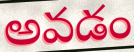
అవడం